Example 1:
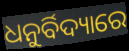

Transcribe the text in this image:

ଧନୁର୍ବିଦ୍ୟାରେ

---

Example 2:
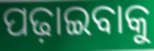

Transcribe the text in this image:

ପଢ଼ାଇବାକୁ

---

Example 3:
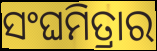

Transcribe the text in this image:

ସଂଘମିତ୍ରାର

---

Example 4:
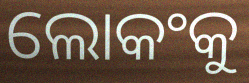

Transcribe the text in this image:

ଲୋକଂକୁ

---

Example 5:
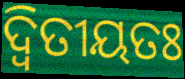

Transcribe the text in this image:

ଦ୍ବିତୀୟତଃ